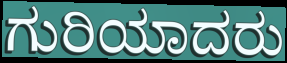
ಗುರಿಯಾದರು